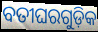
ବତୀଘରଗୁଡ଼ିକ